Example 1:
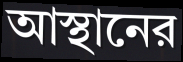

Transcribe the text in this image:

আস্থানের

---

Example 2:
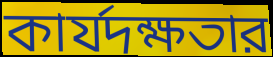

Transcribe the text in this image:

কার্যদক্ষতার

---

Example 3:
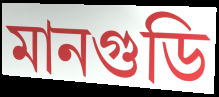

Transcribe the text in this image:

মানগুডি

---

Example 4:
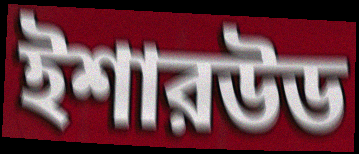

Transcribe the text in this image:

ইশারউড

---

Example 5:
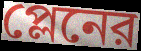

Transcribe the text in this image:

প্লেনের